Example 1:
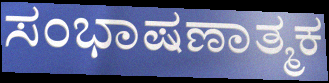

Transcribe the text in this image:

ಸಂಭಾಷಣಾತ್ಮಕ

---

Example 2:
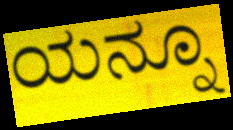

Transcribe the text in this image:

ಯನ್ನೂ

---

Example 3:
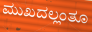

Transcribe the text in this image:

ಮುಖದಲ್ಲಂತೂ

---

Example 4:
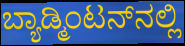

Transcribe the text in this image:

ಬ್ಯಾಡ್ಮಿಂಟನ್‌ನಲ್ಲಿ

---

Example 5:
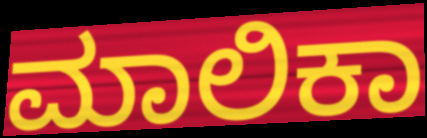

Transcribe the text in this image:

ಮಾಲಿಕಾ